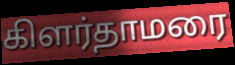
கிளர்தாமரை